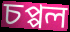
চপ্পল